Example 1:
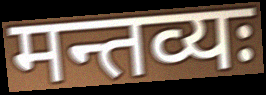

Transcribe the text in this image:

मन्तव्यः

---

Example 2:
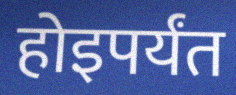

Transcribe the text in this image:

होइपर्यंत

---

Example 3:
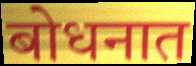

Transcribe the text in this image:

बोधनात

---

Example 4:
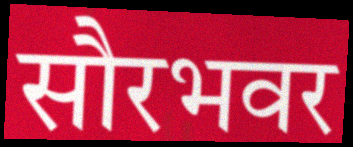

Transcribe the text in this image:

सौरभवर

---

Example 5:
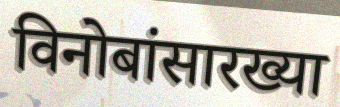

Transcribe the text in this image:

विनोबांसारख्या